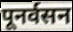
पूनर्वसन